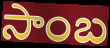
సాంబ